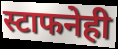
स्टाफनेही